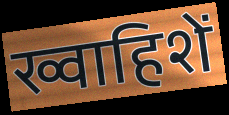
ख्वाहिशें